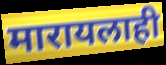
मारायलाही